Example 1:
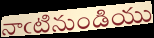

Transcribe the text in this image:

నాఁటినుండియు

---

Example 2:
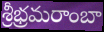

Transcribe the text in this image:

శ్రీభ్రమరాంబా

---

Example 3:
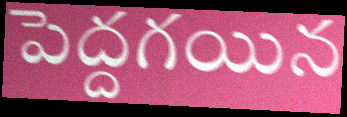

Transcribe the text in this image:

పెద్దగయిన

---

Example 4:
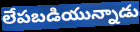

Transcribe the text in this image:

లేపబడియున్నాడు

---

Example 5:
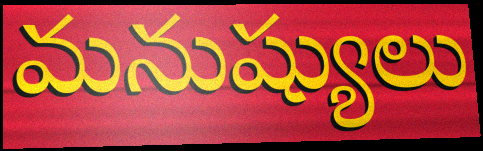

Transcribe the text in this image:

మనుష్యులు